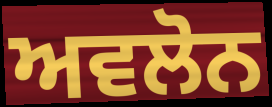
ਅਵਲੋਨ